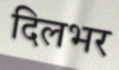
दिलभर